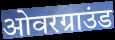
ओवरग्राउंड